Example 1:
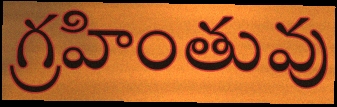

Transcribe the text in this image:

గ్రహింతువు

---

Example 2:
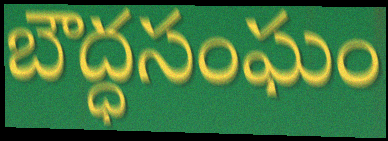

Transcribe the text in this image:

బౌద్ధసంఘం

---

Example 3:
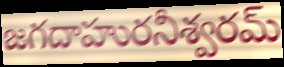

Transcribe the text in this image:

జగదాహురనీశ్వరమ్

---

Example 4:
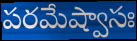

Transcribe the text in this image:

పరమేష్వాసః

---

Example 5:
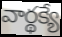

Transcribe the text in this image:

వార్థక్యే